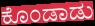
ಕೊಂಡಾಡು